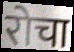
रोचा